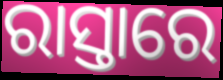
ରାସ୍ତାରେ